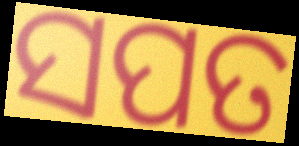
ସପତ